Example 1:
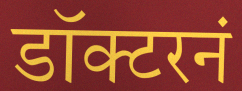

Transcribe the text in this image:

डॉक्टरनं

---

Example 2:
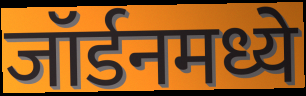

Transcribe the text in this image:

जॉर्डनमध्ये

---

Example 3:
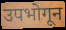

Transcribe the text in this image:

उपभोगून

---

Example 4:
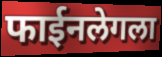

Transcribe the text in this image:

फाईनलेगला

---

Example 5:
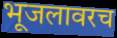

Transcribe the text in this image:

भूजलावरच